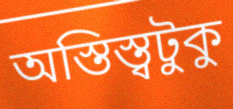
অস্তিস্ত্বটুকু